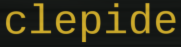
clepide